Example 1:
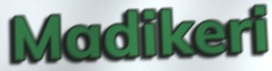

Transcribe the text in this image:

Madikeri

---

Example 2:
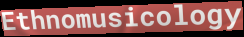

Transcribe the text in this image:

Ethnomusicology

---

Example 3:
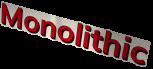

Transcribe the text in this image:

Monolithic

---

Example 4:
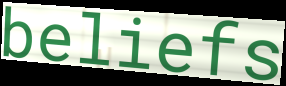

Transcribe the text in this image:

beliefs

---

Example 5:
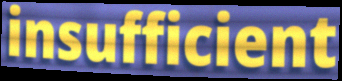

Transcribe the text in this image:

insufficient